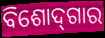
ବିଶୋଦ୍‌ଗାର